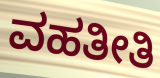
ವಹತೀತಿ